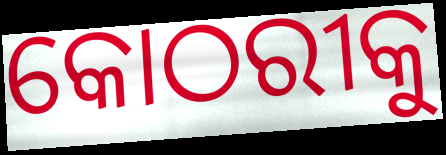
କୋଠରୀକୁ